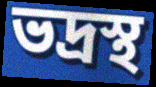
ভদ্রস্থ